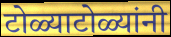
टोळ्याटोळ्यांनी